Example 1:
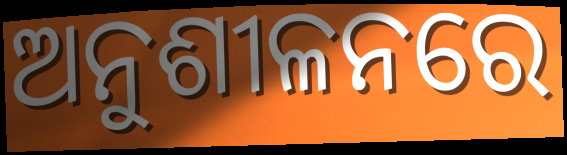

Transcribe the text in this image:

ଅନୁଶୀଳନରେ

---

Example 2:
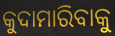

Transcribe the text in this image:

କୁଦାମାରିବାକୁ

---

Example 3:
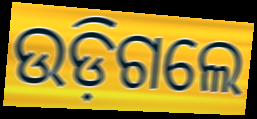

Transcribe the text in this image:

ଉଡ଼ିଗଲେ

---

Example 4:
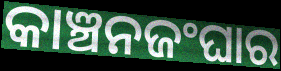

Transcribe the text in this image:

କାଞ୍ଚନଜଂଘାର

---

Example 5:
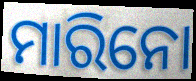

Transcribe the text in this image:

ମାରିନୋ